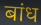
बांध